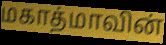
மகாத்மாவின்